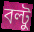
বল্টু